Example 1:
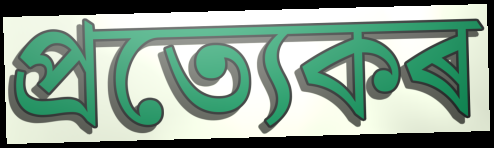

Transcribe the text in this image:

প্ৰত্যেকৰ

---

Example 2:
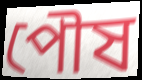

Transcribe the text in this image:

পৌষ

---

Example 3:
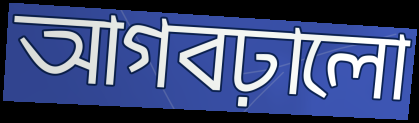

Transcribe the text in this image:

আগবঢ়ালো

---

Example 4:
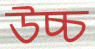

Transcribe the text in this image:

উচ্চ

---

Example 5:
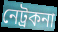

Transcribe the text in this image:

নেট্ৰকনা